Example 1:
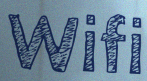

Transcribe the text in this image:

Wifi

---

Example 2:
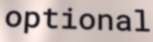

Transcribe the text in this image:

optional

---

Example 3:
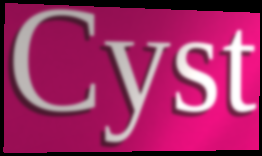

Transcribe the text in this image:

Cyst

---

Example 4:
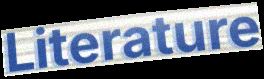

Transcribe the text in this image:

Literature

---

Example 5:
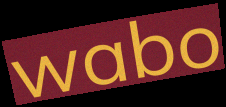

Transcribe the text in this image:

wabo